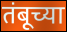
तंबूच्या